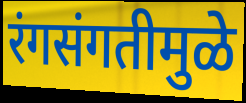
रंगसंगतीमुळे